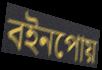
বইনপোয়